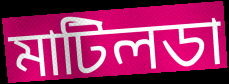
মাটিলডা